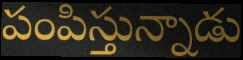
పంపిస్తున్నాడు